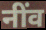
नींव